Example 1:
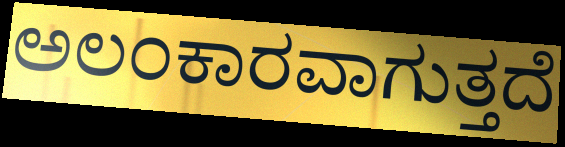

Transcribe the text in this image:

ಅಲಂಕಾರವಾಗುತ್ತದೆ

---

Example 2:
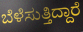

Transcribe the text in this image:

ಬೆಳೆಸುತ್ತಿದ್ದಾರೆ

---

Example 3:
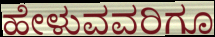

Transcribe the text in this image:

ಹೇಳುವವರಿಗೂ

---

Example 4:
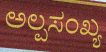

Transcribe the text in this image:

ಅಲ್ಪಸಂಖ್ಯ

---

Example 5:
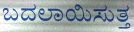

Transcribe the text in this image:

ಬದಲಾಯಿಸುತ್ತ